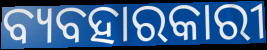
ବ୍ୟବହାରକାରୀ